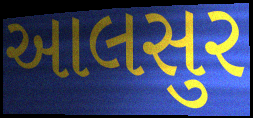
આલસુર